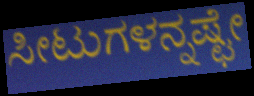
ಸೀಟುಗಳನ್ನಷ್ಟೇ